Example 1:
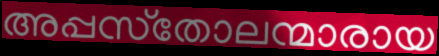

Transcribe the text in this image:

അപ്പസ്‌തോലന്മാരായ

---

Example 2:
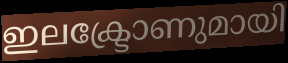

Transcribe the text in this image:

ഇലക്ട്രോണുമായി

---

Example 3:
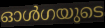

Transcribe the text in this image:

ഓൾഗയുടെ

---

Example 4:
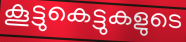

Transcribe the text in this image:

കൂട്ടുകെട്ടുകളുടെ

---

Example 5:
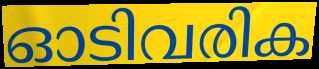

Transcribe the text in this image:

ഓടിവരിക